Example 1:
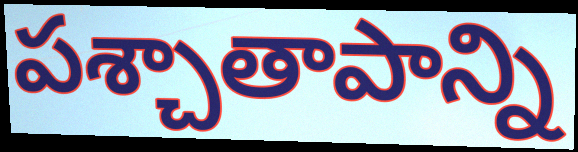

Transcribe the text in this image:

పశ్చాతాపాన్ని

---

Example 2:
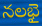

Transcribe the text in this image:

నలభై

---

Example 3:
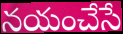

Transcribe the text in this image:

నయంచేసే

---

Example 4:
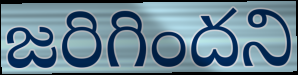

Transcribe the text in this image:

జరిగిందని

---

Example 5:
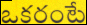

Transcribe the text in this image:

ఒకరంటే